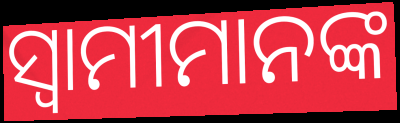
ସ୍ବାମୀମାନଙ୍କ